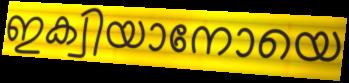
ഇക്വിയാനോയെ